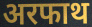
अरफाथ